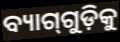
ବ୍ୟାଗ୍‍ଗୁଡ଼ିକୁ